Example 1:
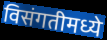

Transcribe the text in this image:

विसंगतीमध्ये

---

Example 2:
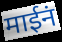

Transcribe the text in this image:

माईनं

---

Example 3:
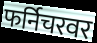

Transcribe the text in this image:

फर्निचरवर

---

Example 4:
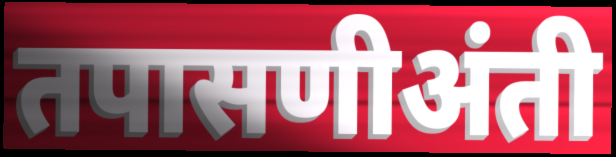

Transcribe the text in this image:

तपासणीअंती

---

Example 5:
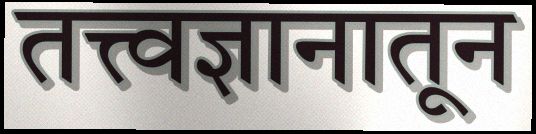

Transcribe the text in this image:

तत्त्वज्ञानातून